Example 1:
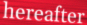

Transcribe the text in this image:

hereafter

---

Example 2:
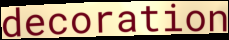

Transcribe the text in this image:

decoration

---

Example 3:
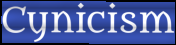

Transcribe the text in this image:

Cynicism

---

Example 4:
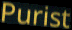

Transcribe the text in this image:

Purist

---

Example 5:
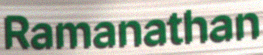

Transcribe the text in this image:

Ramanathan